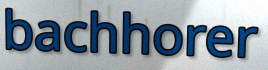
bachhorer